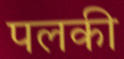
पलकी